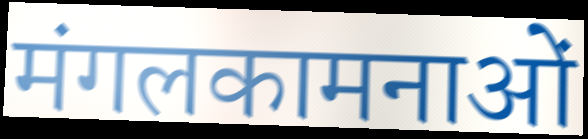
मंगलकामनाओं